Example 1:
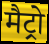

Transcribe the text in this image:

मैट्रो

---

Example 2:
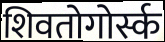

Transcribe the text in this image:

शिवतोगोर्स्क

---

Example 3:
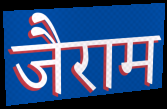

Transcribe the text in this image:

जैराम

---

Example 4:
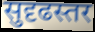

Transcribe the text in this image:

सुदृढस्तर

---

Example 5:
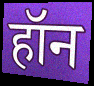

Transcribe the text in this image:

हॉन